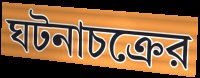
ঘটনাচক্রের